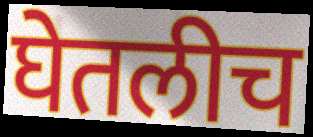
घेतलीच